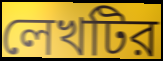
লেখটির